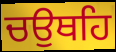
ਚਉਥਹਿ